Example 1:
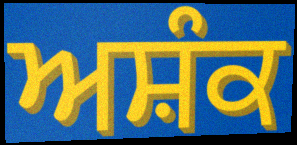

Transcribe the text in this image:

ਅਸ਼ੰਕ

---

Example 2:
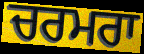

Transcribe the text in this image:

ਚਰਮਰਾ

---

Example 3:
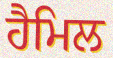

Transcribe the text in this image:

ਹੈਮਿਲ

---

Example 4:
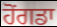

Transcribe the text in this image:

ਹੋਂਗਡਾ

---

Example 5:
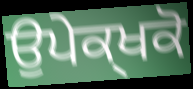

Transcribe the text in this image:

ਉਪੇਕ੍ਖਕੋ